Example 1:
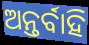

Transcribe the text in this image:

ଅନ୍ତର୍ବାହି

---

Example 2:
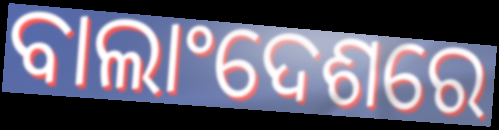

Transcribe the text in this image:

ବାଲାଂଦେଶରେ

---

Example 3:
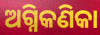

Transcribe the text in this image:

ଅଗ୍ନିକଣିକା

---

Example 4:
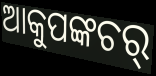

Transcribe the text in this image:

ଆକୁପଙ୍କଚର୍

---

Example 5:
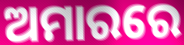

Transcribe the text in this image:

ଅମାରରେ